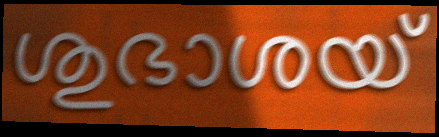
ശുഭാശയ്